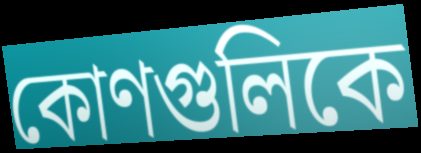
কোণগুলিকে